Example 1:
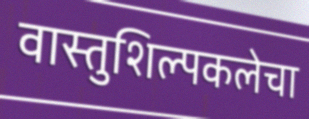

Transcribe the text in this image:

वास्तुशिल्पकलेचा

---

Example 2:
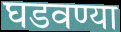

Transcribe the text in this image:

घडवण्या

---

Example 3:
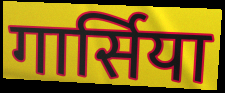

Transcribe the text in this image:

गार्सिया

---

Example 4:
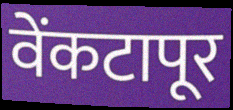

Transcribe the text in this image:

वेंकटापूर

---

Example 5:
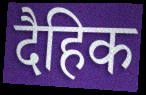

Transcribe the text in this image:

दैहिक